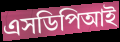
এসডিপিআই